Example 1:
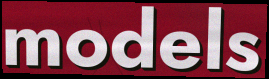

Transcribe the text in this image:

models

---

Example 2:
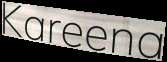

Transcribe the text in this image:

Kareena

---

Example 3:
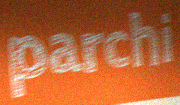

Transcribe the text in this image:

parchi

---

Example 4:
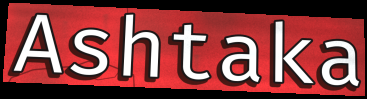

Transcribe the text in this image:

Ashtaka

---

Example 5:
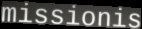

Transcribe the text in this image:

missionis